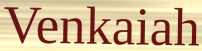
Venkaiah